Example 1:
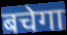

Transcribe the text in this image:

बचेगा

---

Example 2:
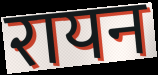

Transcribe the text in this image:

रायन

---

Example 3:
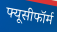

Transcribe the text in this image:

फ्यूसीफॉर्म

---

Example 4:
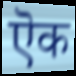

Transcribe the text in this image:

ऎक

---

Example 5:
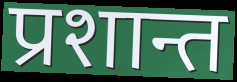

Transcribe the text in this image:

प्रशान्त